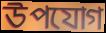
উপযোগ